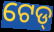
ଟେଡ୍